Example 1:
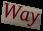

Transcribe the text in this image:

Way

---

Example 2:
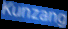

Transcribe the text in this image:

Kunzang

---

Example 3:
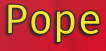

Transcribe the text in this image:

Pope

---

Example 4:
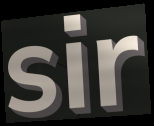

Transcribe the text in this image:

sir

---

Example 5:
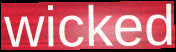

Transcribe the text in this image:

wicked